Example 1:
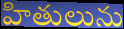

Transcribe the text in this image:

హితులును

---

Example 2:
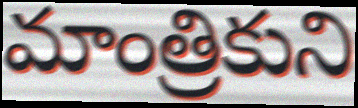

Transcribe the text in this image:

మాంత్రికుని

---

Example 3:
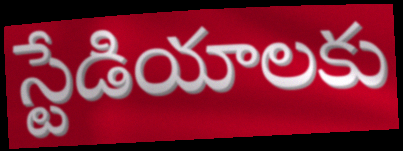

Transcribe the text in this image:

స్టేడియాలకు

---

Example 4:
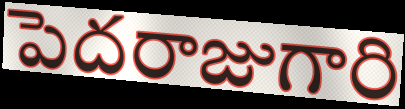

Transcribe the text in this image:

పెదరాజుగారి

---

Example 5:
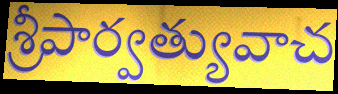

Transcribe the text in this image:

శ్రీపార్వత్యువాచ